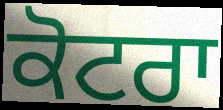
ਕੋਟਰਾ